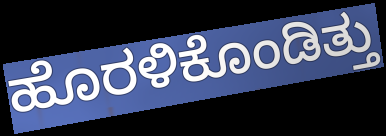
ಹೊರಳಿಕೊಂಡಿತ್ತು